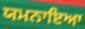
ਯਮਨਾਇਆ